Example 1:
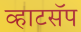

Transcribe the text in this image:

व्हाटसॅप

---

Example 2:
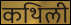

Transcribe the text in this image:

कथिली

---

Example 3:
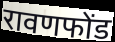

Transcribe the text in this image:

रावणफोंड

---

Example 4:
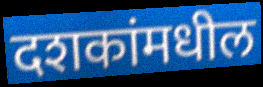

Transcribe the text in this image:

दशकांमधील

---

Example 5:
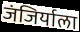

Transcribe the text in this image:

जंजिर्याला